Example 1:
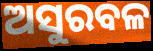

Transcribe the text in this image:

ଅସୁରବଳ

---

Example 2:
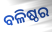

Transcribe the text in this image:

ବଳିଷ୍ଠର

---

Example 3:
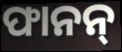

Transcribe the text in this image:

ଫାନନ୍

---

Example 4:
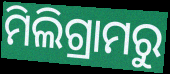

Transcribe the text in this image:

ମିଲିଗ୍ରାମରୁ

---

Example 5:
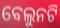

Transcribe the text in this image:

ବେଲୁନଟି